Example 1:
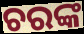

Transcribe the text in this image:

ଚରଙ୍କ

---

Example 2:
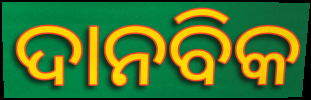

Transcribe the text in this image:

ଦାନବିକ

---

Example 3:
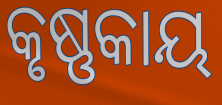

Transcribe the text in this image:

କୃଷ୍ଣକାୟ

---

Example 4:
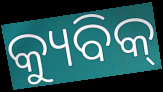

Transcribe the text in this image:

କ୍ୟୁବିକ୍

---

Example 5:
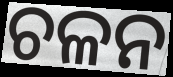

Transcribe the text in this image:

ଚଳନ